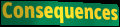
Consequences